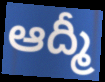
ఆద్మీ